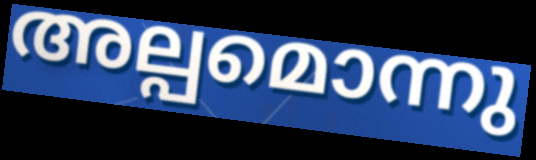
അല്പമൊന്നു